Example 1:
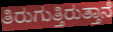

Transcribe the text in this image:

ತಿರುಗುತ್ತಿರುತ್ತಾನೆ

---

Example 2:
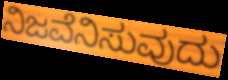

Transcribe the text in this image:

ನಿಜವೆನಿಸುವುದು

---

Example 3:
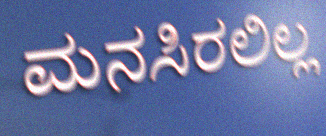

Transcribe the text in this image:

ಮನಸಿರಲಿಲ್ಲ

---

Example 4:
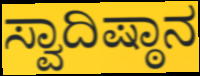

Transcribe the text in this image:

ಸ್ವಾದಿಷ್ಠಾನ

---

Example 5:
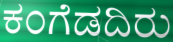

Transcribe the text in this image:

ಕಂಗೆಡದಿರು